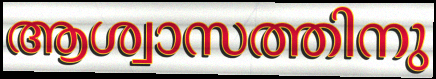
ആശ്വാസത്തിനു